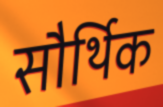
सौर्थिक